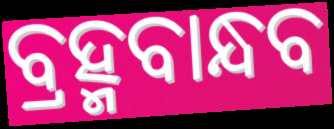
ବ୍ରହ୍ମବାନ୍ଧବ